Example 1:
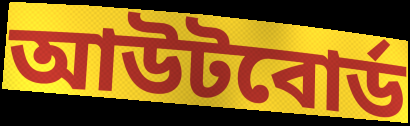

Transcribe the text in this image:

আউটবোর্ড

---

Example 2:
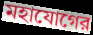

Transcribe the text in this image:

মহাযোগের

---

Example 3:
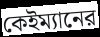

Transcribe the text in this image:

কেইম্যানের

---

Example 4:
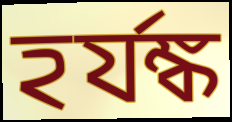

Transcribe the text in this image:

হর্যঙ্ক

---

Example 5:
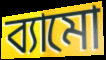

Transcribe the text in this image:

ব্যামো